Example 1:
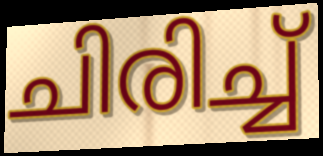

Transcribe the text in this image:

ചിരിച്ച്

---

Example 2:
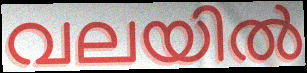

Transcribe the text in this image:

വലയിൽ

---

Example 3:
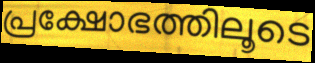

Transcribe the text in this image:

പ്രക്ഷോഭത്തിലൂടെ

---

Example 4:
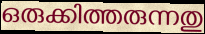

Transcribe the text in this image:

ഒരുക്കിത്തരുന്നതു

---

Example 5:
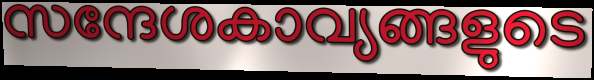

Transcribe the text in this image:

സന്ദേശകാവ്യങ്ങളുടെ